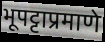
भूपट्टाप्रमाणे